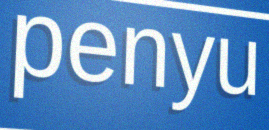
penyu